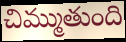
చిమ్ముతుంది